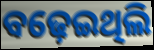
ବଢ଼େଇଥିଲି